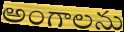
అంగాలను